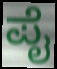
ಪೈ